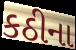
કઠીના